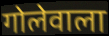
गोलेवाला